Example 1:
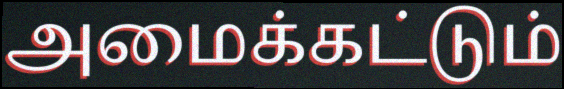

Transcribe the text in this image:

அமைக்கட்டும்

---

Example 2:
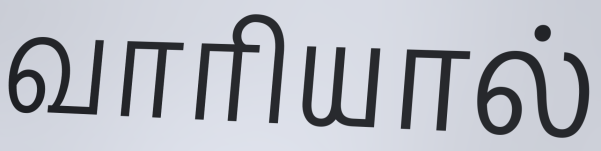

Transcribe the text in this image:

வாரியால்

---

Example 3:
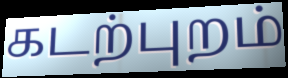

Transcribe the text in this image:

கடற்புறம்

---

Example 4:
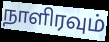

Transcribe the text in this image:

நாளிரவும்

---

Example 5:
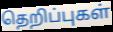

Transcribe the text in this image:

தெறிப்புகள்